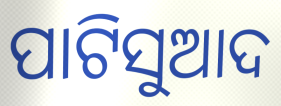
ପାଟିସୁଆଦ